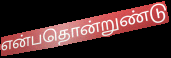
என்பதொன்றுண்டு